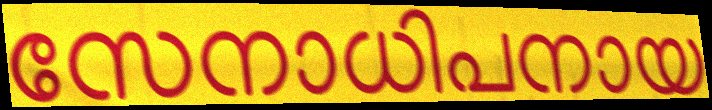
സേനാധിപനായ